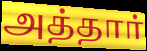
அத்தார்